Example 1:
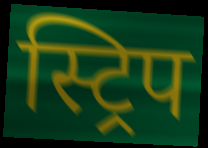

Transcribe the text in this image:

स्ट्रिप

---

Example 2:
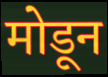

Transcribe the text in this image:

मोडून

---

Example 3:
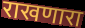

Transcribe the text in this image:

राखणारा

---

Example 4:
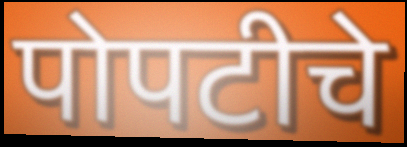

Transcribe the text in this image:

पोपटीचे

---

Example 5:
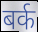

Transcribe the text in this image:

बर्क